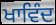
ਖਾਵਿੰਦ